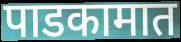
पाडकामात